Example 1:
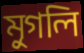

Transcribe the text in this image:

মুগলি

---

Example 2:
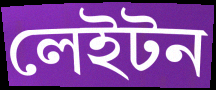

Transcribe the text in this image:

লেইটন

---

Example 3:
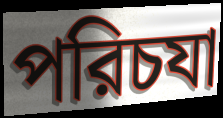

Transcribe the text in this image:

পরিচযা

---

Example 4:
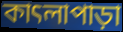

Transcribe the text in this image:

কাৎলাপাড়া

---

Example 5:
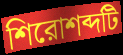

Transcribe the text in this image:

শিরোশব্দটি